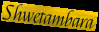
Shwetambara